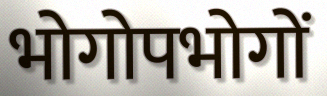
भोगोपभोगों